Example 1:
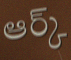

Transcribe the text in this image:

ఆర్క్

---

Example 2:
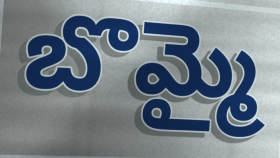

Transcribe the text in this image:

బొమ్మై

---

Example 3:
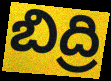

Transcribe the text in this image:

బిద్రి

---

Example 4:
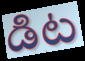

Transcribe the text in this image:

డిట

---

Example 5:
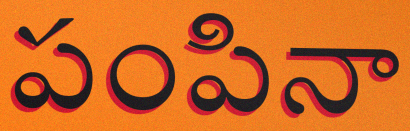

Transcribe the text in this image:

పంపినా